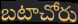
బటాచోరు